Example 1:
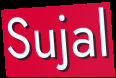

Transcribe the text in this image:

Sujal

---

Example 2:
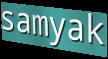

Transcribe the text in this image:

samyak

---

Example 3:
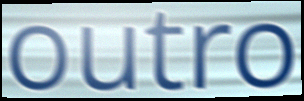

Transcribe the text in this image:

outro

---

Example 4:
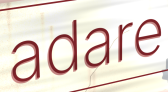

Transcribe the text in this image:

adare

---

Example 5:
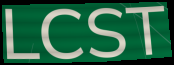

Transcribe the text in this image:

LCST